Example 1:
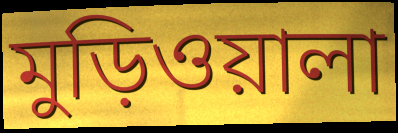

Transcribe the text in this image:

মুড়িওয়ালা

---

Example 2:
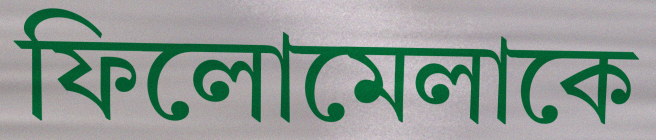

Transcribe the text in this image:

ফিলোমেলাকে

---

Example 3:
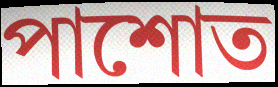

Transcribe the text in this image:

পাশোত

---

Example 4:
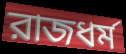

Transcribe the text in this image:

রাজধর্ম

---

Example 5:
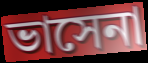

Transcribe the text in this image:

ভাসেনা